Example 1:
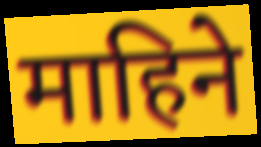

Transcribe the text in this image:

माहिने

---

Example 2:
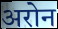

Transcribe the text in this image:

अरोन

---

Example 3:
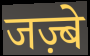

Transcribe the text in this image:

जज़्बे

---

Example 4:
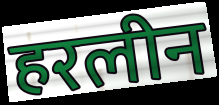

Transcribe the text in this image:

हरलीन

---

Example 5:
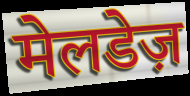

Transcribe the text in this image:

मेलडेज़